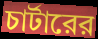
চার্টারের